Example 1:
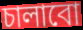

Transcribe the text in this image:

চালাবো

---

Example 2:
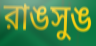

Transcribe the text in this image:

রাঙসুঙ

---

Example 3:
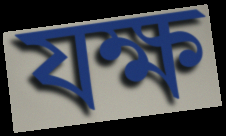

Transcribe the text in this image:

যক্ষ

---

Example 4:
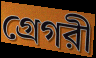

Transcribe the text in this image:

গ্রেগরী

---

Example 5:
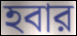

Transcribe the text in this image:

হবার